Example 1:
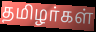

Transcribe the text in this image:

தமிழர்கள்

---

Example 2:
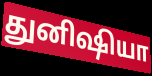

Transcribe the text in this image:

துனிஷியா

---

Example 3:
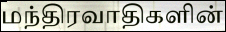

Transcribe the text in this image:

மந்திரவாதிகளின்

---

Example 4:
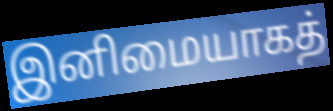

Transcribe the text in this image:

இனிமையாகத்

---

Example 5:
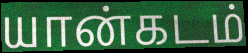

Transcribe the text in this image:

யான்கடம்